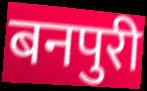
बनपुरी